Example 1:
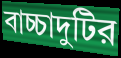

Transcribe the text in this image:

বাচ্চাদুটির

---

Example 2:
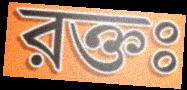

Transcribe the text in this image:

রক্তঃ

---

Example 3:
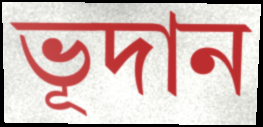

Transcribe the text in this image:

ভূদান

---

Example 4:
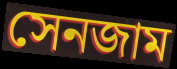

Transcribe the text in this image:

সেনজাম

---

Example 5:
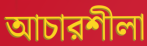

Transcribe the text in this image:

আচারশীলা